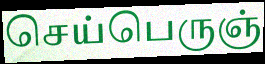
செய்பெருஞ்